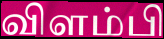
விளம்பி